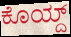
ಕೊಯ್ದ್